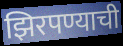
झिरपण्याची